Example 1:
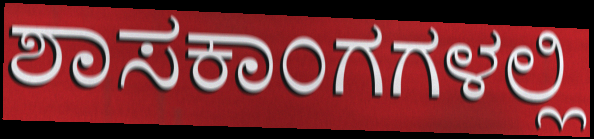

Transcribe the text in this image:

ಶಾಸಕಾಂಗಗಳಲ್ಲಿ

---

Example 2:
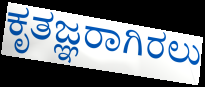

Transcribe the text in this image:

ಕೃತಜ್ಞರಾಗಿರಲು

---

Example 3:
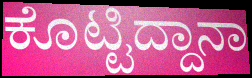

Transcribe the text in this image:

ಕೊಟ್ಟಿದ್ದಾನಾ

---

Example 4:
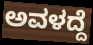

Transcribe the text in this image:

ಅವಳದ್ದೆ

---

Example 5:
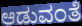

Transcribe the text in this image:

ಆಡುವಂತೆ